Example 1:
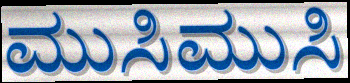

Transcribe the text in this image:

ಮುಸಿಮುಸಿ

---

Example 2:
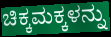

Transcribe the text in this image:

ಚಿಕ್ಕಮಕ್ಕಳನ್ನು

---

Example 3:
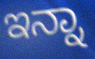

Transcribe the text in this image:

ಇನ್ನಾ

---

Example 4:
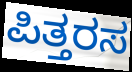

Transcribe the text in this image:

ಪಿತ್ತರಸ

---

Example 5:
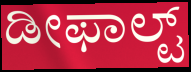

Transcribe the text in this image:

ಡೀಫಾಲ್ಟ್